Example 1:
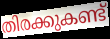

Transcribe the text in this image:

തിരക്കുകണ്ട്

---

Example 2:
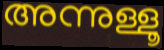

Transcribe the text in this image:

അന്നുള്ളൂ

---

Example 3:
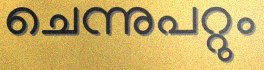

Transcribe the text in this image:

ചെന്നുപറ്റും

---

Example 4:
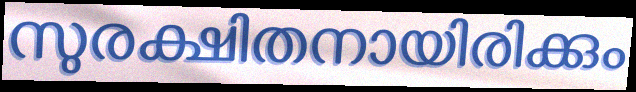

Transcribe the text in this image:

സുരക്ഷിതനായിരിക്കും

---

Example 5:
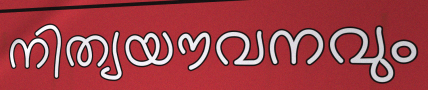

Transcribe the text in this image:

നിത്യയൗവനവും